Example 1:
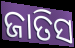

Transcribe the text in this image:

ଜାତିସ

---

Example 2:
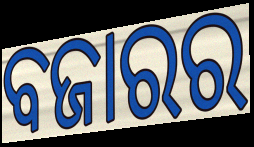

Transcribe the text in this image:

ବଜାରର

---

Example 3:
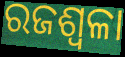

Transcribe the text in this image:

ରଜଶ୍ୱଳା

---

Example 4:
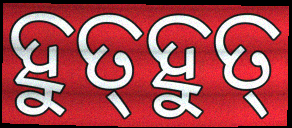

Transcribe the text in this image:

ହୁତ୍‍ହୁତ୍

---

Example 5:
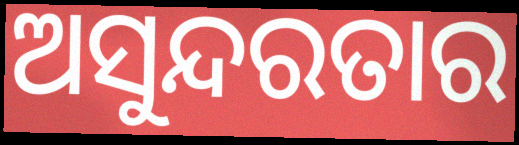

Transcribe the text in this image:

ଅସୁନ୍ଦରତାର